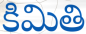
కిమితి